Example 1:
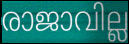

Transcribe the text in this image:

രാജാവില്ല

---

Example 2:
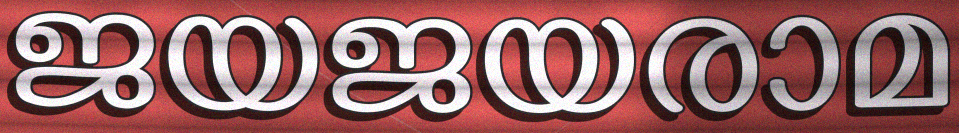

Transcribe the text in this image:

ജയജയരാമ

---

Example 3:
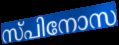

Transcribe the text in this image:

സ്പിനോസ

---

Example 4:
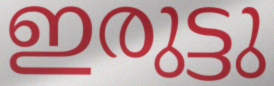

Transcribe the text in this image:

ഇരുട്ടു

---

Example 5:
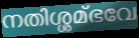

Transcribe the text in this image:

നതിശ്ശമ്ഭവേ